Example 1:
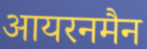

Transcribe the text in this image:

आयरनमैन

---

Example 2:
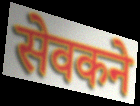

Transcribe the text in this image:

सेवकने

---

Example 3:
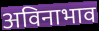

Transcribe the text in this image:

अविनाभाव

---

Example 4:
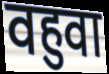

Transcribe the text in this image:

वहुवा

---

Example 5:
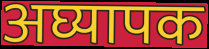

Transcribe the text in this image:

अघ्यापक